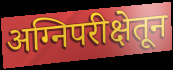
अग्निपरीक्षेतून